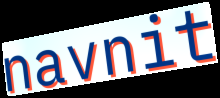
navnit